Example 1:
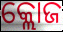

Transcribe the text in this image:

କ୍ଲୋଜ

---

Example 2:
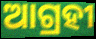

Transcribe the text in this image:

ଆଗ୍ରହୀ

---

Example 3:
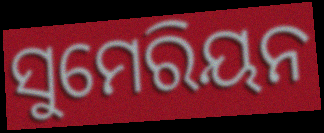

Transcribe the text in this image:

ସୁମେରିୟନ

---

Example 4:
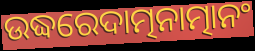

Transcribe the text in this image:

ଉଦ୍ଧରେଦାତ୍ମନାତ୍ମାନଂ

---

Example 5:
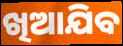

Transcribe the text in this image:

ଖିଆଯିବ